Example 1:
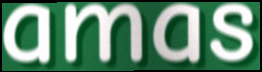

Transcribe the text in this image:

amas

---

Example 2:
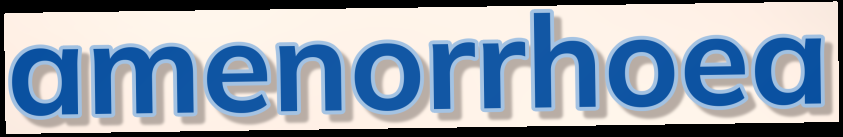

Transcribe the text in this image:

amenorrhoea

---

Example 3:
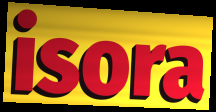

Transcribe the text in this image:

isora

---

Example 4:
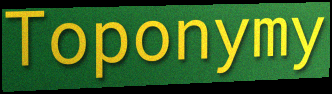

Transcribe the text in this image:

Toponymy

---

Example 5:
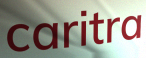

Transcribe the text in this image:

caritra